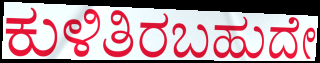
ಕುಳಿತಿರಬಹುದೇ